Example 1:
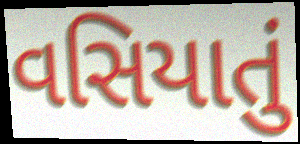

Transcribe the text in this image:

વસિયાતું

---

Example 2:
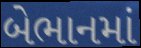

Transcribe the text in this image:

બેભાનમાં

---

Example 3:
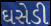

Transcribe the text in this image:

ઘસેડી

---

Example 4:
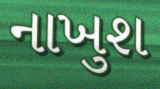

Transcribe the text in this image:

નાખુશ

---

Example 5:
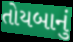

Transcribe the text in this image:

તોયબાનું